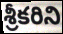
శ్రీకరిని